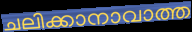
ചലിക്കാനാവാത്ത